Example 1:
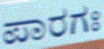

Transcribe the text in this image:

ಪಾರಗಃ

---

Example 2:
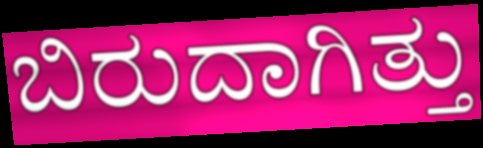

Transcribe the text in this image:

ಬಿರುದಾಗಿತ್ತು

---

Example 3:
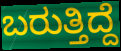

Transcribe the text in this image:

ಬರುತ್ತಿದ್ದೆ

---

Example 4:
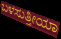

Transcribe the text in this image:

ಬಳಸುತ್ತೀಯಾ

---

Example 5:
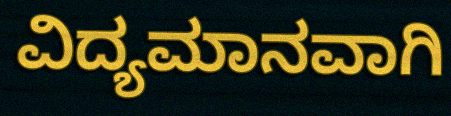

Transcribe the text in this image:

ವಿದ್ಯಮಾನವಾಗಿ